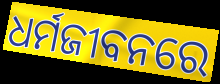
ଧର୍ମଜୀବନରେ